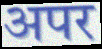
अपर